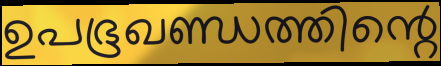
ഉപഭൂഖണ്ഡത്തിന്റെ